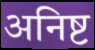
अनिष्ट